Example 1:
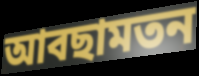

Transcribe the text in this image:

আবছামতন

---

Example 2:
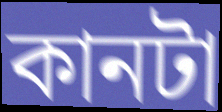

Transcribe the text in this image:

কানটা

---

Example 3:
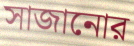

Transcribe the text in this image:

সাজানোর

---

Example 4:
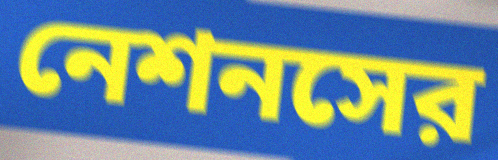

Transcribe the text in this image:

নেশনসের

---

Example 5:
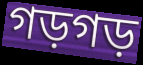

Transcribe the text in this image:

গড়গড়